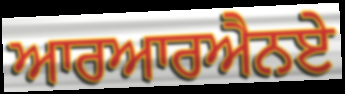
ਆਰਆਰਐਨਏ